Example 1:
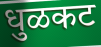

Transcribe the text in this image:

धुळकट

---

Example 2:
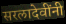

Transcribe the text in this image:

सरलादेवींनी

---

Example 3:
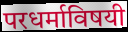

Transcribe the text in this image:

परधर्माविषयी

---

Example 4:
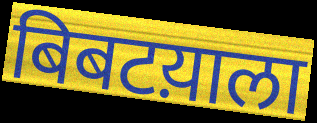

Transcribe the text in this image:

बिबटय़ाला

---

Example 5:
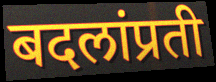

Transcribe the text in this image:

बदलांप्रती